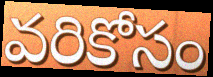
వరికోసం